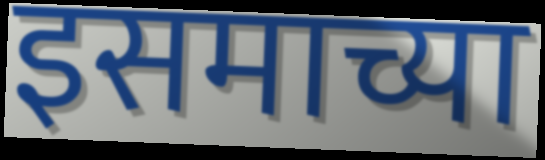
इसमाच्या